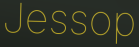
Jessop